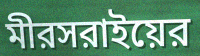
মীরসরাইয়ের